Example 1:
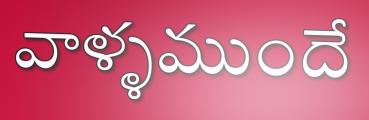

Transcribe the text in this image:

వాళ్ళముందే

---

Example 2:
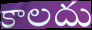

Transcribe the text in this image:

కాలదు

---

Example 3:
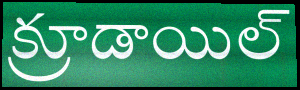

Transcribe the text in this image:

క్రూడాయిల్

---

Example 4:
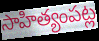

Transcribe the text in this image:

సాహిత్యంపట్ల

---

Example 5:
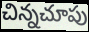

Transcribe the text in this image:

చిన్నచూపు